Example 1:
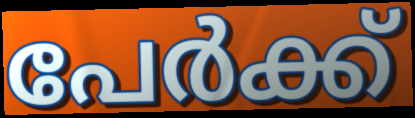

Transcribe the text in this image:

പേർക്ക്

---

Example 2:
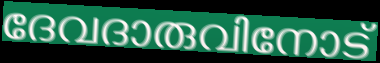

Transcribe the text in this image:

ദേവദാരുവിനോട്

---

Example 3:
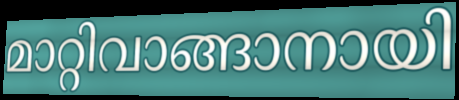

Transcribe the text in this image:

മാറ്റിവാങ്ങാനായി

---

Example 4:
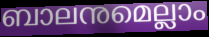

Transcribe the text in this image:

ബാലനുമെല്ലാം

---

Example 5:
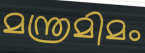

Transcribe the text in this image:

മന്ത്രമിമം